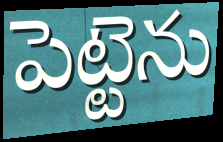
పెట్టెను